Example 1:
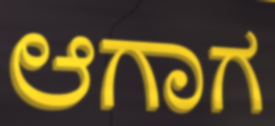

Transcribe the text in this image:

ಆಗಾಗ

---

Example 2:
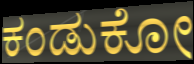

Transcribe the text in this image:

ಕಂಡುಕೋ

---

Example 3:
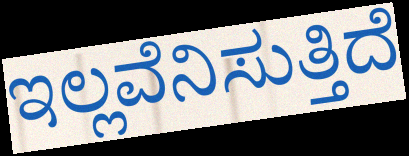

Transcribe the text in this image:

ಇಲ್ಲವೆನಿಸುತ್ತಿದೆ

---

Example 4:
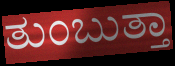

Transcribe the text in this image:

ತುಂಬುತ್ತಾ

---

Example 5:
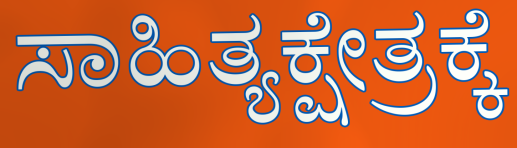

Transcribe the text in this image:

ಸಾಹಿತ್ಯಕ್ಷೇತ್ರಕ್ಕೆ